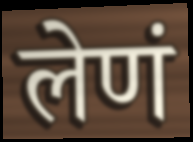
लेणं